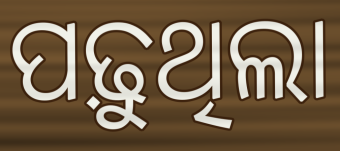
ପଢ଼ୁଥିଲା